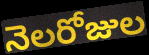
నెలరోజుల